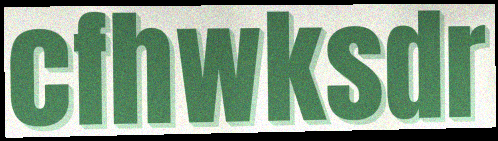
cfhwksdr